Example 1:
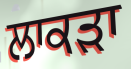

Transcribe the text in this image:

ਲਾਕੜਾ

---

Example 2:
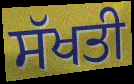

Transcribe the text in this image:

ਸੱਖਤੀ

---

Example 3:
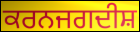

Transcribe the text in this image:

ਕਰਨਜਗਦੀਸ਼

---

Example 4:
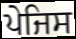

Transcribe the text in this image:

ਪੇਜਿਸ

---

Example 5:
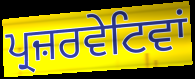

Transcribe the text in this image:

ਪ੍ਰਜ਼ਰਵੇਟਿਵਾਂ